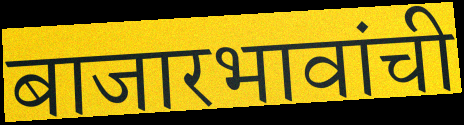
बाजारभावांची